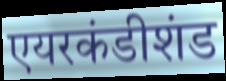
एयरकंडीशंड